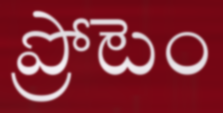
ప్రోటెం